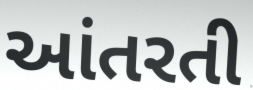
આંતરતી